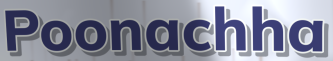
Poonachha